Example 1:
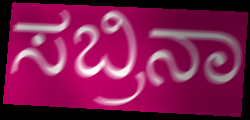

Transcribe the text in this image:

ಸಬ್ರಿನಾ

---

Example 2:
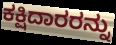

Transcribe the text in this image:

ಕಕ್ಷಿದಾರರನ್ನು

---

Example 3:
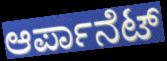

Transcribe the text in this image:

ಆರ್ಪಾನೆಟ್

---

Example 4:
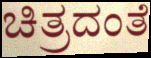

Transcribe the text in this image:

ಚಿತ್ರದಂತೆ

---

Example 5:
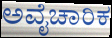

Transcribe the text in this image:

ಅವೈಚಾರಿಕ